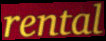
rental